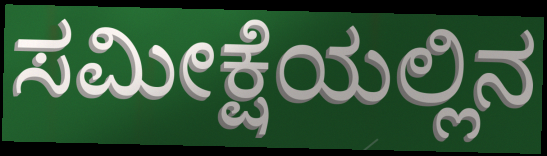
ಸಮೀಕ್ಷೆಯಲ್ಲಿನ